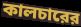
কালচারের